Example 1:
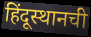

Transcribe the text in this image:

हिंदूस्थानची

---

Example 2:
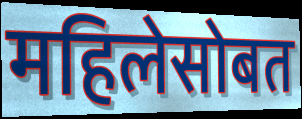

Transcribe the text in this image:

महिलेसोबत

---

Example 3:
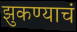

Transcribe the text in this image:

झुकण्याचं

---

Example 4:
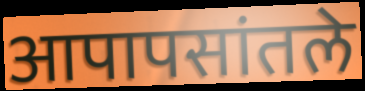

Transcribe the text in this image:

आपापसांतले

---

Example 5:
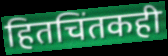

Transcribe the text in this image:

हितचिंतकही